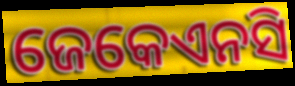
ଜେକେଏନସି